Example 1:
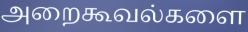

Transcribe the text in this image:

அறைகூவல்களை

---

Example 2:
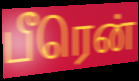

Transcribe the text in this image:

பீரென்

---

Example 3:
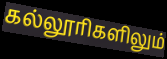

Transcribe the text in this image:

கல்லூரிகளிலும்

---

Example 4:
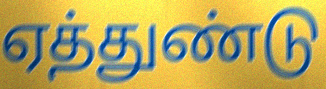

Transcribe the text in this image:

ஏத்துண்டு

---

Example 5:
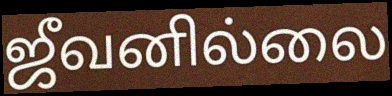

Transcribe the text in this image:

ஜீவனில்லை